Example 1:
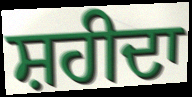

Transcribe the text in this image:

ਸ਼ਹੀਦਾ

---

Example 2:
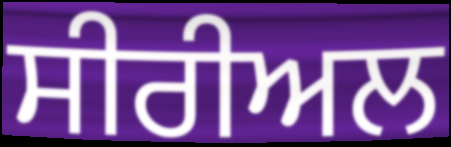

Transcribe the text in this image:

ਸੀਰੀਅਲ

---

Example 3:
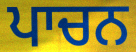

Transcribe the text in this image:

ਪਾਚਨ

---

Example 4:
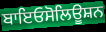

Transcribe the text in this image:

ਬਾਇਓਸੋਲਿਊਸ਼ਨ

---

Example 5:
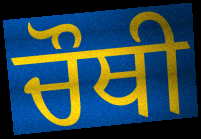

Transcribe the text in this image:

ਚੌਥੀ